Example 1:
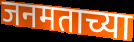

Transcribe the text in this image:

जनमताच्या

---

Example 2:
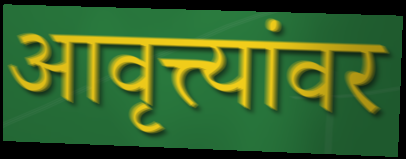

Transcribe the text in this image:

आवृत्त्यांवर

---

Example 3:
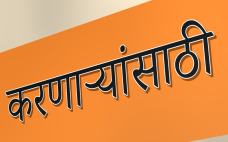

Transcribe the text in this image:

करणार्‍यांसाठी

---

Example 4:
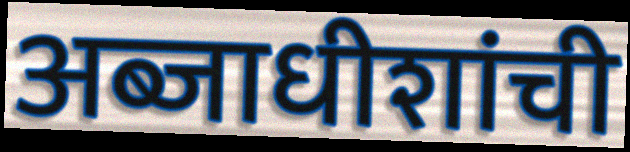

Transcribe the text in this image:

अब्जाधीशांची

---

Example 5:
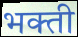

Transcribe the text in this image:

भक्ती